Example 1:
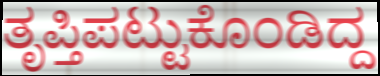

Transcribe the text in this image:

ತೃಪ್ತಿಪಟ್ಟುಕೊಂಡಿದ್ದ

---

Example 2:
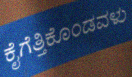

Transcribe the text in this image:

ಕೈಗೆತ್ತಿಕೊಂಡವಳು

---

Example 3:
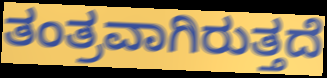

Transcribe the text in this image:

ತಂತ್ರವಾಗಿರುತ್ತದೆ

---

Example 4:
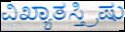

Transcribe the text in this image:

ವಿಖ್ಯಾತಸ್ತ್ರಿಷು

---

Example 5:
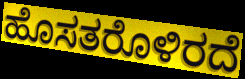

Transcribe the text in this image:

ಹೊಸತರೊಳಿರದೆ